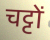
चट्टों